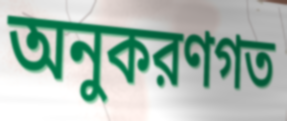
অনুকরণগত